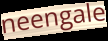
neengale